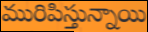
మురిపిస్తున్నాయి